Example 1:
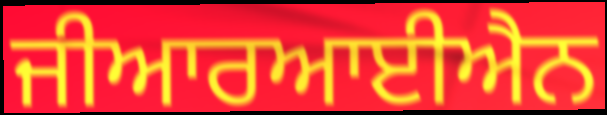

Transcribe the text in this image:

ਜੀਆਰਆਈਐਨ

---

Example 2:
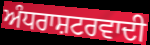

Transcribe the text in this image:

ਅੰਧਰਾਸ਼ਟਰਵਾਦੀ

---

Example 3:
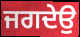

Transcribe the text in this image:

ਜਗਦੇਉ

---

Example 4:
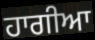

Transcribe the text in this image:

ਹਾਗੀਆ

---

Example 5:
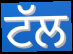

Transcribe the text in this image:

ਟੱਲ